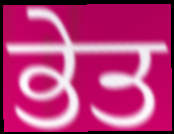
ਭੇਤ